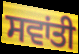
ਸਵਾਂਤੀ